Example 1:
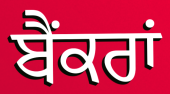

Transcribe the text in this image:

ਬੈਂਕਰਾਂ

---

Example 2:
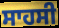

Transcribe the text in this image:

ਸਾਹਸੀ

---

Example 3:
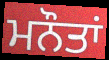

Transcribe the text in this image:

ਮਨੌਤਾਂ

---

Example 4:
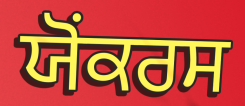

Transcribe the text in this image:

ਯੋੰਕਰਸ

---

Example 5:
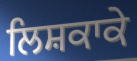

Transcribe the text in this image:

ਲਿਸ਼ਕਾਕੇ